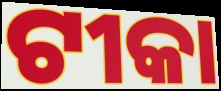
ଟୀକା